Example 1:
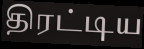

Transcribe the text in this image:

திரட்டிய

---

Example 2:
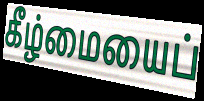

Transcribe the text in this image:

கீழ்மையைப்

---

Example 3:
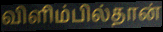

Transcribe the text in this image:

விளிம்பில்தான்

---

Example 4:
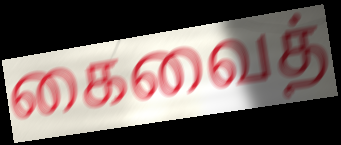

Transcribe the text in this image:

கைவைத்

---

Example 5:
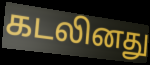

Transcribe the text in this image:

கடலினது